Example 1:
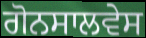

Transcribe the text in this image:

ਗੋਨਸਾਲਵੇਸ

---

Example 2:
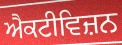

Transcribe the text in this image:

ਐਕਟੀਵਿਜ਼ਨ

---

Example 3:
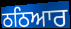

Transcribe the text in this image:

ਠਠਿਆਰ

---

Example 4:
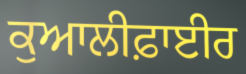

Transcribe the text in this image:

ਕੁਆਲੀਫ਼ਾਈਰ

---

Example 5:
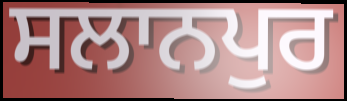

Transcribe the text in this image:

ਸਲਾਨਪੁਰ